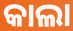
କାଲା